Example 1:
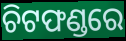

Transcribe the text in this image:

ଚିଟଫଣ୍ଡରେ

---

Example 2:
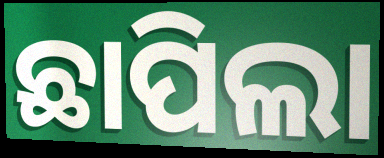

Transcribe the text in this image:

ଛାପିଲା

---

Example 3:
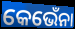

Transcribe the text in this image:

କେଭେଁନା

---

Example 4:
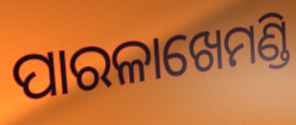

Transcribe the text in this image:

ପାରଳାଖେମଣ୍ଡି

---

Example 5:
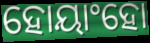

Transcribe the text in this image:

ହୋୟାଂହୋ